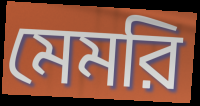
মেমরি